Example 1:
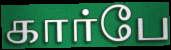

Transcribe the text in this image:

கார்பே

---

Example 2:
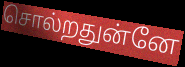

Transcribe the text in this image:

சொல்றதுன்னே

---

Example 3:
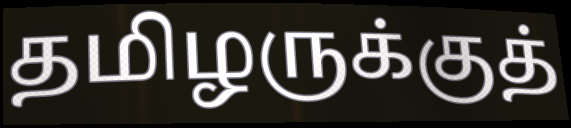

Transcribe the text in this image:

தமிழருக்குத்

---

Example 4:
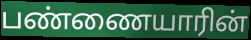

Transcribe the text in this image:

பண்ணையாரின்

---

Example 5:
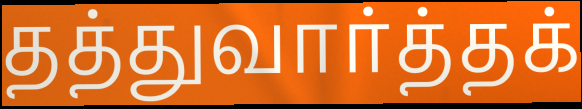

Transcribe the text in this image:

தத்துவார்த்தக்